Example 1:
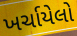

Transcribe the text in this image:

ખર્ચાયેલો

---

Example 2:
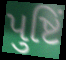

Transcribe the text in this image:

પુષ્ટિં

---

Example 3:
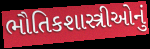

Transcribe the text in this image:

ભૌતિકશાસ્ત્રીઓનું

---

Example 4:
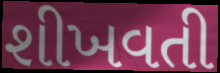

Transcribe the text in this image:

શીખવતી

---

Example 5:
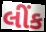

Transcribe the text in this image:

લીંક